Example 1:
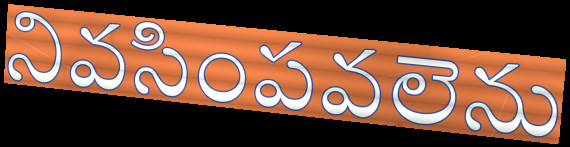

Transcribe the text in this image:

నివసింపవలెను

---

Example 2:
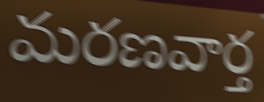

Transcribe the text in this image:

మరణవార్త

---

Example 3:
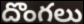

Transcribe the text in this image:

దొంగలు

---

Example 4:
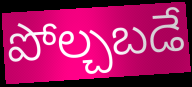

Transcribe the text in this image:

పోల్చబడే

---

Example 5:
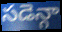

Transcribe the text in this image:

సడెన్గా